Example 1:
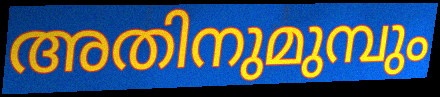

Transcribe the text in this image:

അതിനുമുമ്പും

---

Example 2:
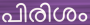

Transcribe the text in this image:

പിരിശം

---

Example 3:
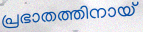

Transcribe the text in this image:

പ്രഭാതത്തിനായ്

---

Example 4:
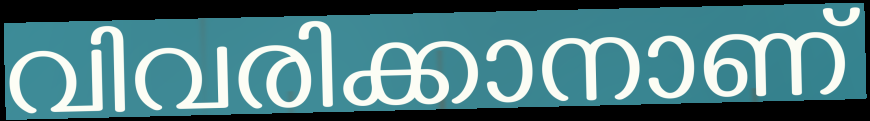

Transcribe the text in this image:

വിവരിക്കാനാണ്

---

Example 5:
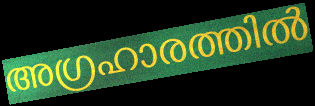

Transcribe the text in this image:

അഗ്രഹാരത്തിൽ